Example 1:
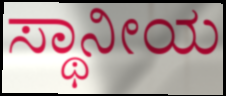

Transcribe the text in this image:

ಸ್ಥಾನೀಯ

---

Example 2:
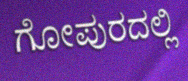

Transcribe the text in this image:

ಗೋಪುರದಲ್ಲಿ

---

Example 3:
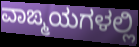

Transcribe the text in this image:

ವಾಙ್ಮಯಗಳಲ್ಲಿ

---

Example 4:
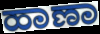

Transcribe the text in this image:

ಹಾಣಾ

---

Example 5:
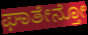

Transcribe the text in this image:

ಘಾತೇನ್ತೋ